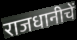
राजधानीचें